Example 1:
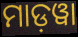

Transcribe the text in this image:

ମାଡ଼ୱା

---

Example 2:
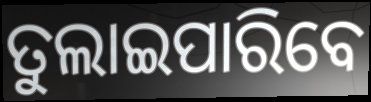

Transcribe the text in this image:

ତୁଲାଇପାରିବେ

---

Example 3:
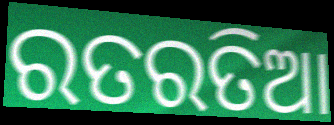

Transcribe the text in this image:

ରତରତିଆ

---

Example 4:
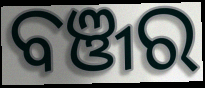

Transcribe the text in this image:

ବଞ୍ଜର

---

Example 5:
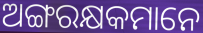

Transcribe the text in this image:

ଅଙ୍ଗରକ୍ଷକମାନେ